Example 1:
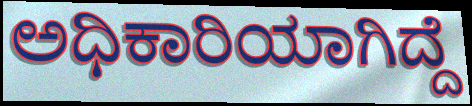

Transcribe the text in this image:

ಅಧಿಕಾರಿಯಾಗಿದ್ದೆ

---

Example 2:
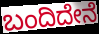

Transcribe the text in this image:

ಬಂದಿದೇನೆ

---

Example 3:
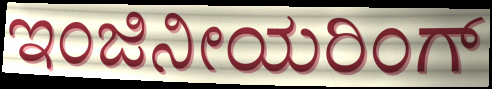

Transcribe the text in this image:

ಇಂಜಿನೀಯರಿಂಗ್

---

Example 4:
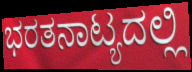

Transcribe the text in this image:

ಭರತನಾಟ್ಯದಲ್ಲಿ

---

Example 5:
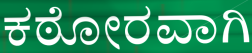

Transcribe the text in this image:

ಕಠೋರವಾಗಿ